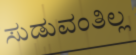
ಸುಡುವಂತಿಲ್ಲ